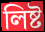
লিষ্ট